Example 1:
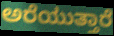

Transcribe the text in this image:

ಅರೆಯುತ್ತಾರೆ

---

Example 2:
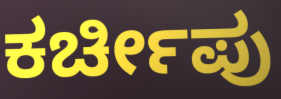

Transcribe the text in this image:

ಕರ್ಚೀಪು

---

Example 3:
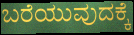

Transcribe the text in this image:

ಬರೆಯುವುದಕ್ಕೆ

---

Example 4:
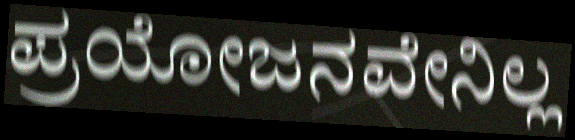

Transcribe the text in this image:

ಪ್ರಯೋಜನವೇನಿಲ್ಲ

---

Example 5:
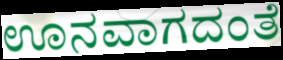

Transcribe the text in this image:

ಊನವಾಗದಂತೆ